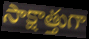
సాక్షాత్తుగా